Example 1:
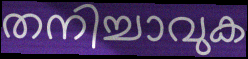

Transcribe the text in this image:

തനിച്ചാവുക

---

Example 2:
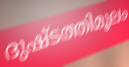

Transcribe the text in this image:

ദുഷ്ടത്തിമൂലം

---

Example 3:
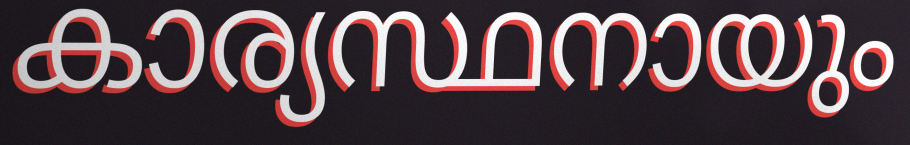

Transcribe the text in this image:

കാര്യസ്ഥനായും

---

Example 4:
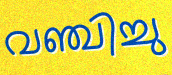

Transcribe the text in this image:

വഞ്ചിച്ചു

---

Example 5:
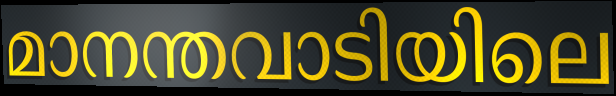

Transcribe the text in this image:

മാനന്തവാടിയിലെ